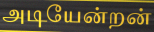
அடியேன்றன்